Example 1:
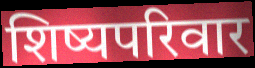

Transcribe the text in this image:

शिष्यपरिवार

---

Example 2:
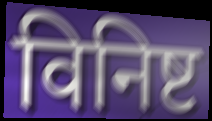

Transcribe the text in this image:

विनिष्ट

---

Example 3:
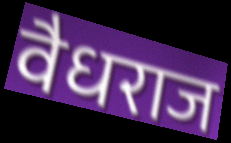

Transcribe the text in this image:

वैधराज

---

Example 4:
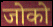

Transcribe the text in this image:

जोको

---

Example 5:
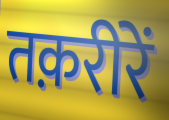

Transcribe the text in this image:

तक़रीरें